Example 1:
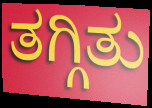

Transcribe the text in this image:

ತಗ್ಗಿತು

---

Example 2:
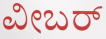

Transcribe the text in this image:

ವೀಬರ್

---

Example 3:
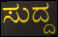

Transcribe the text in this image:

ಸುದ್ದ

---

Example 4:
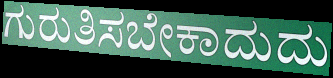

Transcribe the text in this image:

ಗುರುತಿಸಬೇಕಾದುದು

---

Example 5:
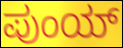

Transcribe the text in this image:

ಪುಂಯ್